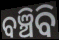
ବଞ୍ଚିବି